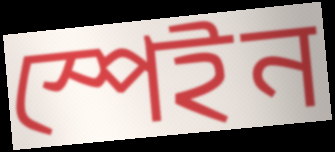
স্পেইন